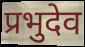
प्रभुदेव